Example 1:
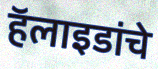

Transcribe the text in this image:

हॅलाइडांचे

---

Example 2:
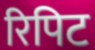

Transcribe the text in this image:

रिपिट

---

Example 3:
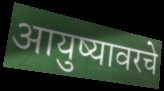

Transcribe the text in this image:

आयुष्यावरचे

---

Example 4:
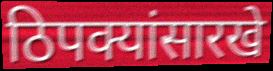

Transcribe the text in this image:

ठिपक्यांसारखे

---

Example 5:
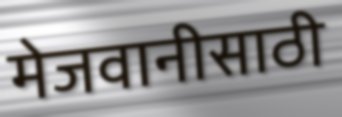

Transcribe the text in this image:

मेजवानीसाठी